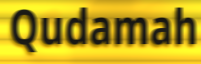
Qudamah